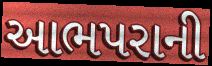
આભપરાની